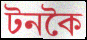
টনকৈ